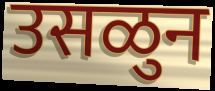
उसळुन